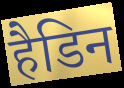
हैडिन